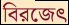
বিরজেৎ